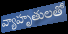
వ్యాహృతులతో